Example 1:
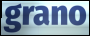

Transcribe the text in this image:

grano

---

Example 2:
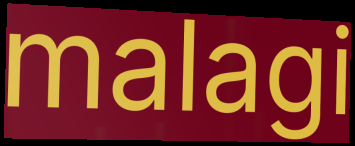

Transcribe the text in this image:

malagi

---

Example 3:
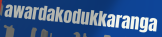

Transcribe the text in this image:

awardakodukkaranga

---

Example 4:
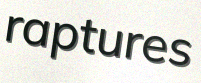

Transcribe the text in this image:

raptures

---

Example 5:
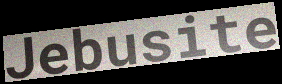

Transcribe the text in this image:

Jebusite